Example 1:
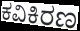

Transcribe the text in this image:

ಕವಿಕಿರಣ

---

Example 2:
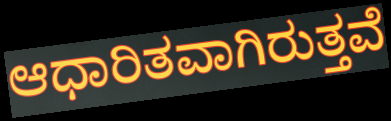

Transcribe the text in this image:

ಆಧಾರಿತವಾಗಿರುತ್ತವೆ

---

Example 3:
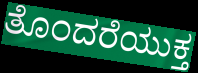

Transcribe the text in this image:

ತೊಂದರೆಯುಕ್ತ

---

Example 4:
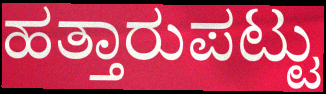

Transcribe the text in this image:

ಹತ್ತಾರುಪಟ್ಟು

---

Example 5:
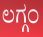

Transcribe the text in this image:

ಲಗ್ಗಂ